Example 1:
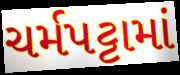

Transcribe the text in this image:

ચર્મપટ્ટામાં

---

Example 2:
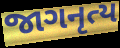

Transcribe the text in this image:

જાગનૃત્ય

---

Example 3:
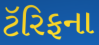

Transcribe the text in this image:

ટૅરિફના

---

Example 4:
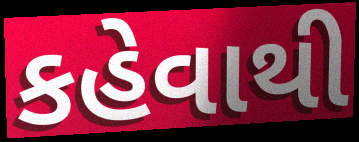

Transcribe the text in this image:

કહેવાથી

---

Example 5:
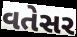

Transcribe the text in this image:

વતેસર